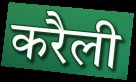
करैली